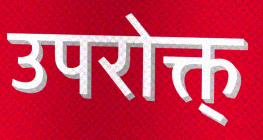
उपरोक्त्